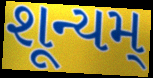
શૂન્યમ્